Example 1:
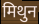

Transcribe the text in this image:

मिथुन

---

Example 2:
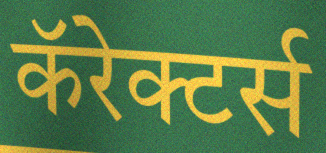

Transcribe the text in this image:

कॅरेक्टर्स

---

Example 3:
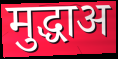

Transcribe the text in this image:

मुद्धाअ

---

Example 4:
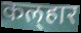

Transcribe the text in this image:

कल्हार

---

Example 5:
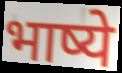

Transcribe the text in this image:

भाष्ये